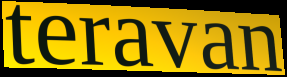
teravan